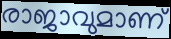
രാജാവുമാണ്